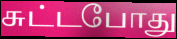
சுட்டபோது